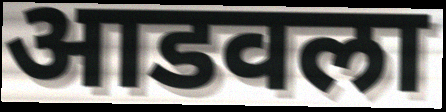
आडवला